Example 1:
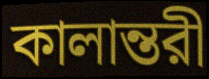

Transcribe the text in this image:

কালান্তরী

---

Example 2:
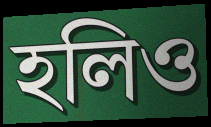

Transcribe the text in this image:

হলিও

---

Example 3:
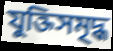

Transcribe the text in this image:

যুক্তিসমৃদ্ধ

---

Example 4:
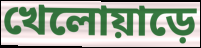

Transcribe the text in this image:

খেলোয়াড়ে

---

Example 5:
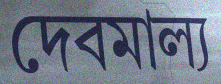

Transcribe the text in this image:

দেবমাল্য